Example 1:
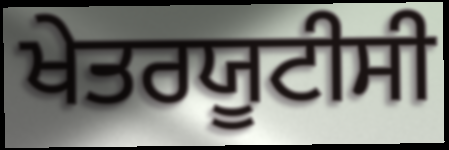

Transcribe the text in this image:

ਖੇਤਰਯੂਟੀਸੀ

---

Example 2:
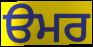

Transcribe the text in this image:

ੳਮਰ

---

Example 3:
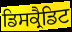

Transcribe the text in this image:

ਡਿਸਕ੍ਰੈਡਿਟ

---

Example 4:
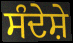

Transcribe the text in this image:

ਸੰਦੇਸ਼ੇ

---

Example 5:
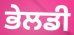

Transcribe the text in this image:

ਭੇਲਡੀ